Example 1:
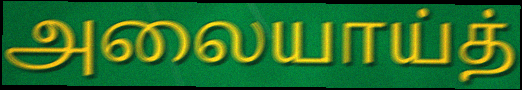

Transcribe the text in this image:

அலையாய்த்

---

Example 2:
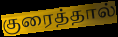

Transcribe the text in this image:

குரைத்தால்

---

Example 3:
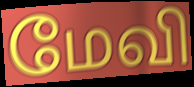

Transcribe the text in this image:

மேவி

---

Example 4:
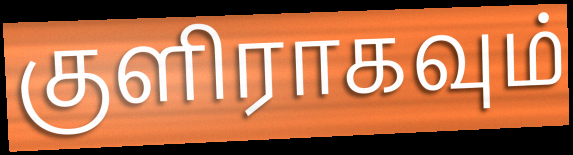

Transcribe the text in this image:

குளிராகவும்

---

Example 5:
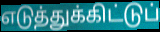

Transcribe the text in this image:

எடுத்துக்கிட்டுப்